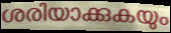
ശരിയാക്കുകയും